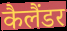
कैलैंडर